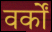
वर्कों